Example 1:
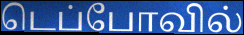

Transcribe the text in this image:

டெப்போவில்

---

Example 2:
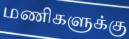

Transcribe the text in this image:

மணிகளுக்கு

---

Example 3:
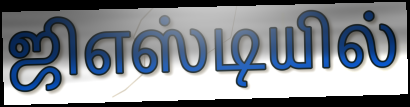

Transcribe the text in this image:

ஜிஎஸ்டியில்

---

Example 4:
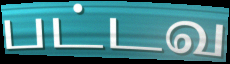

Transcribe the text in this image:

பட்டவ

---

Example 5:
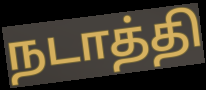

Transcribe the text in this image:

நடாத்தி